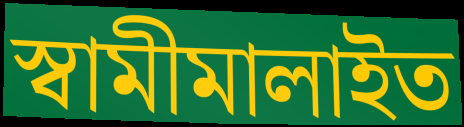
স্বামীমালাইত